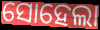
ସୋହେଲା